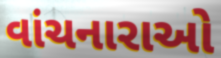
વાંચનારાઓ